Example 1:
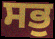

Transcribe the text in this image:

ਸਭੁ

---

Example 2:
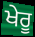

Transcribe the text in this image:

ਖੇਰੂ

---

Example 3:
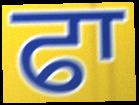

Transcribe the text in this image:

ਫਾ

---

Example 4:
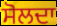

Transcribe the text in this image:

ਸੋਲਦਾ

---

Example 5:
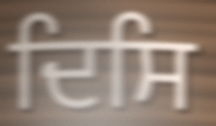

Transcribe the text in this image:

ਦਿਸਿ